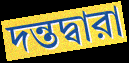
দন্তদ্বারা